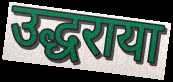
उद्धराया